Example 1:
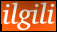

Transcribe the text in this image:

ilgili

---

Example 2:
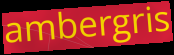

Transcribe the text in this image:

ambergris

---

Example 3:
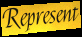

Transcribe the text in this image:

Represent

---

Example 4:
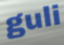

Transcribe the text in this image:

guli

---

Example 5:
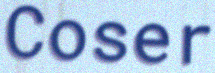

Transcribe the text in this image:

Coser